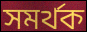
সমৰ্থক